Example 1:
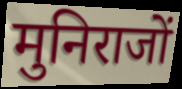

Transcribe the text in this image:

मुनिराजों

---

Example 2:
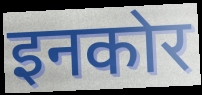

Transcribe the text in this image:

इनकोर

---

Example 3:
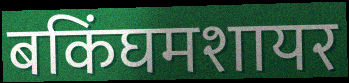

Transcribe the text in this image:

बकिंघमशायर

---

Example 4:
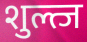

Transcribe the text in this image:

शुल्त्ज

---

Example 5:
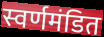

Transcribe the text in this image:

स्वर्णमंडित